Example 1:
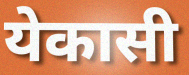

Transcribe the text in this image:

येकासी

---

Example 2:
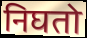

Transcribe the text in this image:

निघतो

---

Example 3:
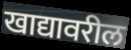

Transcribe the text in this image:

खाद्यावरील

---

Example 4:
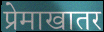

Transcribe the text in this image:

प्रेमाखातर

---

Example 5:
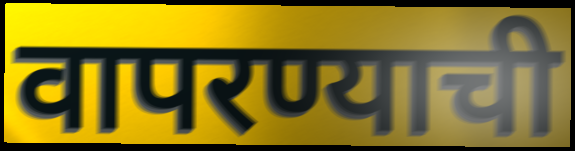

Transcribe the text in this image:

वापरण्याची